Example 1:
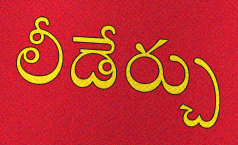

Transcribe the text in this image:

లీడేర్చు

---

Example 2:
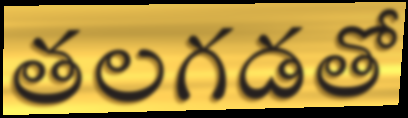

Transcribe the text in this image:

తలగడతో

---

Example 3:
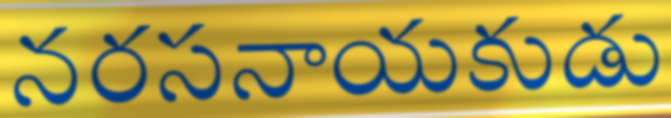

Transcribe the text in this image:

నరసనాయకుడు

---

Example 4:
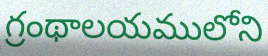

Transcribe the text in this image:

గ్రంథాలయములోని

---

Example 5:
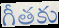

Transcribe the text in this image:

గీతకు